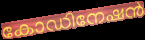
കോഡിനേഷൻ